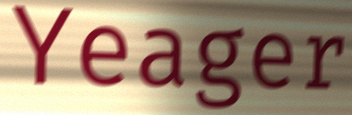
Yeager